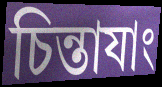
চিন্তাযাং